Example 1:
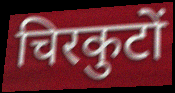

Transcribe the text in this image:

चिरकुटों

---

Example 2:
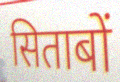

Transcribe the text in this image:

सिताबों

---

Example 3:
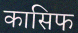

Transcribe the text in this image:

कासिफ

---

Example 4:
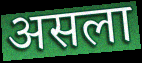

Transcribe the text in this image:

असला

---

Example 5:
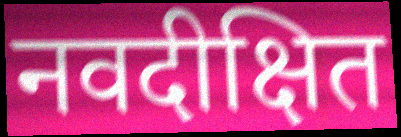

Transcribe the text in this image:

नवदीक्षित